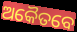
ଅକୈତବେ